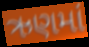
ઋણમાં